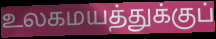
உலகமயத்துக்குப்